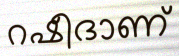
റഷീദാണ്